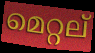
മെറ്റല്